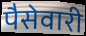
पैसेवारी